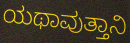
ಯಥಾವುತ್ತಾನಿ